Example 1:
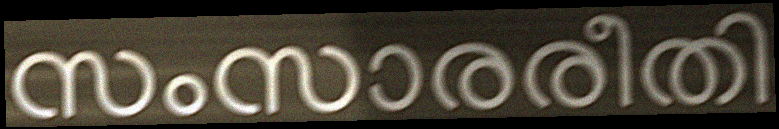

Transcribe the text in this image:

സംസാരരീതി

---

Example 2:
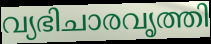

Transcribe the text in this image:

വ്യഭിചാരവൃത്തി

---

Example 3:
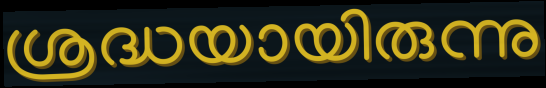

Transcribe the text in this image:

ശ്രദ്ധയായിരുന്നു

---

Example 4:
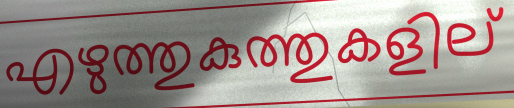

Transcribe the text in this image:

എഴുത്തുകുത്തുകളില്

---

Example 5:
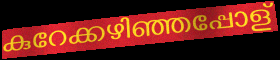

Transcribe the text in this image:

കുറേക്കഴിഞ്ഞപ്പോള്